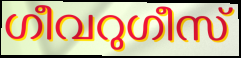
ഗീവറുഗീസ്